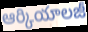
ఆర్కియాలజీ